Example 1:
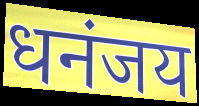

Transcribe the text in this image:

धनंजय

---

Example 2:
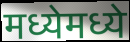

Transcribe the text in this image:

मध्येमध्ये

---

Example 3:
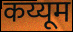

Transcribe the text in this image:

कय्यूम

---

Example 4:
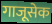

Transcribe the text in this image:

गाजूसेक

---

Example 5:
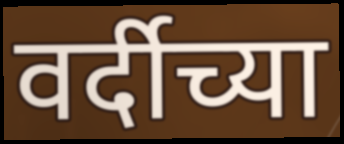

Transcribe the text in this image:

वर्दीच्या